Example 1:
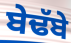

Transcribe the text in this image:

ਬੇਢੱਬੇ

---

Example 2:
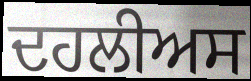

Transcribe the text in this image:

ਦਹਲੀਅਸ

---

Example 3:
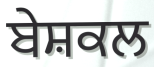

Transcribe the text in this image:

ਬੇਸ਼ਕਲ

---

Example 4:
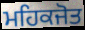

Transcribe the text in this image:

ਮਹਿਕਜੋਤ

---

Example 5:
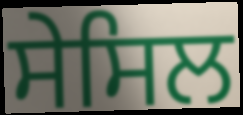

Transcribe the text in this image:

ਸੇਸਿਲ